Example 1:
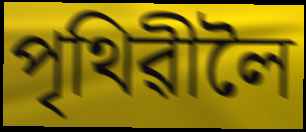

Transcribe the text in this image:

পৃথিৱীলৈ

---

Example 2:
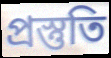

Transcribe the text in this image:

প্ৰস্তুতি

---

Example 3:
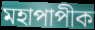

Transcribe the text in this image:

মহাপাপীক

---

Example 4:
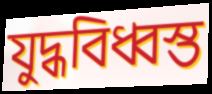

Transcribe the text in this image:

যুদ্ধবিধ্বস্ত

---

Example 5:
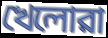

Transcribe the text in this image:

খেলোৱা